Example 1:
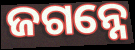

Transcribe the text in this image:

ଜଗନ୍ନେ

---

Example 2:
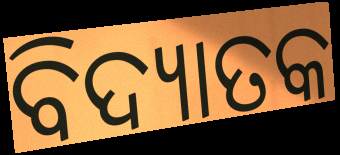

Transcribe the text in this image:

ବିଦ୍ୟାତକ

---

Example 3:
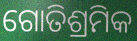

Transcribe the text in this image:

ଗୋତିଶ୍ରମିକ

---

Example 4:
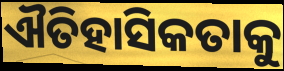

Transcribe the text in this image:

ଐତିହାସିକତାକୁ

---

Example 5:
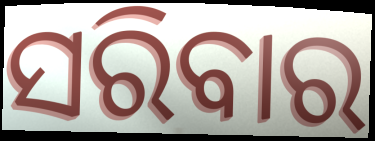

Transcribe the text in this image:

ସରିବାର